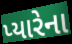
પ્યારેના